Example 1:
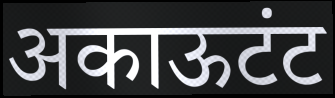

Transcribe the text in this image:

अकाऊटंट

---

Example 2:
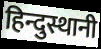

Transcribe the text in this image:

हिन्दुस्थानी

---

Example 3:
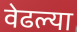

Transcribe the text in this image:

वेढल्या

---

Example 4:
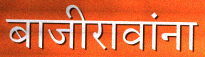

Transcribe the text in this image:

बाजीरावांना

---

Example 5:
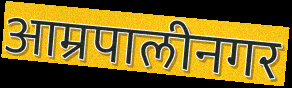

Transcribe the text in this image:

आम्रपालीनगर